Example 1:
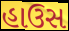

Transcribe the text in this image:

હાઉસ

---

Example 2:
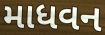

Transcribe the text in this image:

માધવન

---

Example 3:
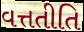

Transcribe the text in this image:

વત્તતીતિ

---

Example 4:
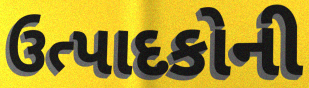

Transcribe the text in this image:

ઉત્પાદકોની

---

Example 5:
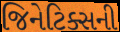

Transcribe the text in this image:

જિનેટિક્સની